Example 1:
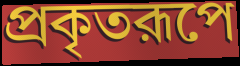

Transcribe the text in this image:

প্রকৃতরূপে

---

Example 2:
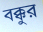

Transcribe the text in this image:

বক্কুর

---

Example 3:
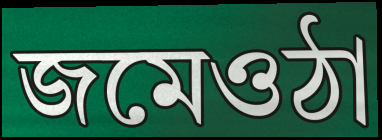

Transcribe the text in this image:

জমেওঠা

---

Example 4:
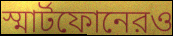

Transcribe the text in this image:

স্মার্টফোনেরও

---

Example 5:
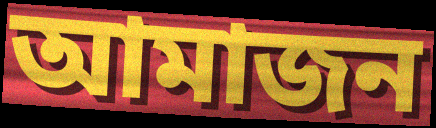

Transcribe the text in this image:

আমাজন